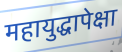
महायुद्धापेक्षा